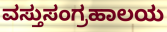
ವಸ್ತುಸಂಗ್ರಹಾಲಯ